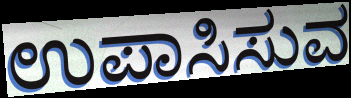
ಉಪಾಸಿಸುವ